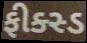
ફીક્સ્ડ